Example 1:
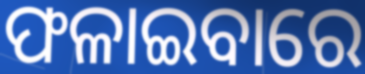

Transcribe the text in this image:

ଫଳାଇବାରେ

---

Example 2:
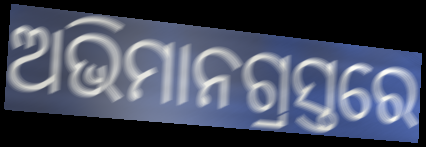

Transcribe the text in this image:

ଅଭିମାନଗ୍ରସ୍ତରେ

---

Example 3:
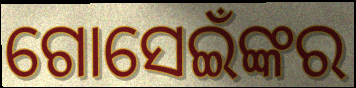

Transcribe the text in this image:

ଗୋସେଇଁଙ୍କର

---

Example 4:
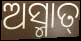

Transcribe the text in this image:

ଅସ୍ମାତ୍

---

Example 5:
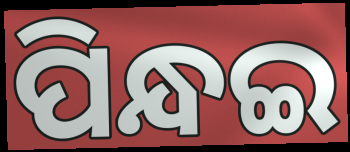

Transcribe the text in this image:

ପିନ୍ଧଇ